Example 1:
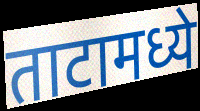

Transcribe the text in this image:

ताटामध्ये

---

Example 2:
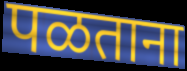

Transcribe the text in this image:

पळताना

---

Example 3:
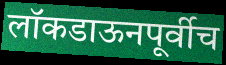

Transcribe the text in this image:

लॉकडाऊनपूर्वीच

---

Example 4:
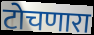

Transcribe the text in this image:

टोचणारा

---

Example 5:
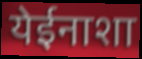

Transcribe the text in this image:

येईनाशा